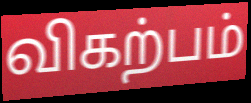
விகற்பம்